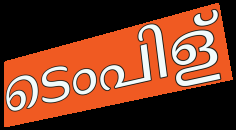
ടെംപിള്